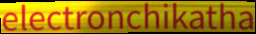
electronchikatha